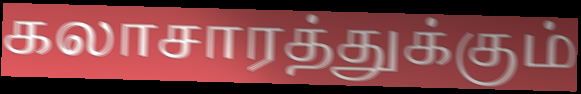
கலாசாரத்துக்கும்